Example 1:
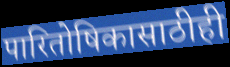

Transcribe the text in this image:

पारितोषिकासाठीही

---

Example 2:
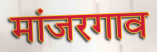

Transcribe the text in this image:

मांजरगाव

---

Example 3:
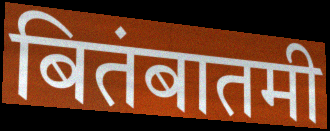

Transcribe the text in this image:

बितंबातमी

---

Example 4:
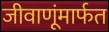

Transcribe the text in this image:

जीवाणूंमार्फत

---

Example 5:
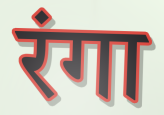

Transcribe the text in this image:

रंगा